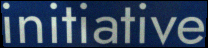
initiative